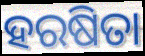
ହରଷିତା